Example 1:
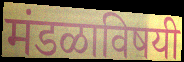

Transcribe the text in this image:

मंडळाविषयी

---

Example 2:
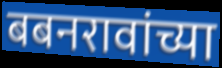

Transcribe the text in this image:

बबनरावांच्या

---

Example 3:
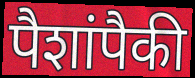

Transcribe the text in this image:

पैशांपैकी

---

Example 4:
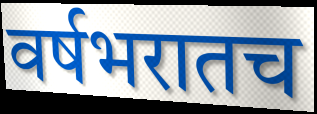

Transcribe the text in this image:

वर्षभरातच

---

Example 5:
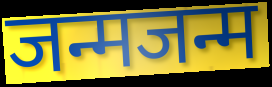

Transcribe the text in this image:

जन्मजन्म